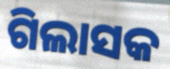
ଗିଲାସକ